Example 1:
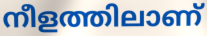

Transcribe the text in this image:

നീളത്തിലാണ്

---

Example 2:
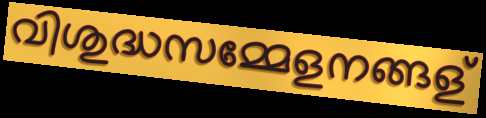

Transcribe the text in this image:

വിശുദ്ധസമ്മേളനങ്ങള്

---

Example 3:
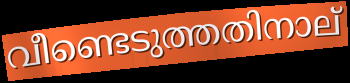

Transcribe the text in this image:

വീണ്ടെടുത്തതിനാല്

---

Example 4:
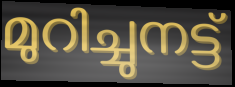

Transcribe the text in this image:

മുറിച്ചുനട്ട്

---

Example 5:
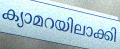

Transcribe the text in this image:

ക്യാമറയിലാക്കി